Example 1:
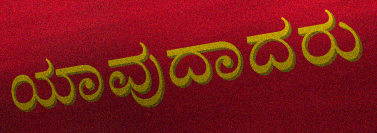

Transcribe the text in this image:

ಯಾವುದಾದರು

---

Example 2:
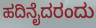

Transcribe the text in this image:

ಹದಿನೈದರಂದು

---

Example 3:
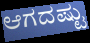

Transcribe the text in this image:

ಆಗದಷ್ಟು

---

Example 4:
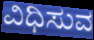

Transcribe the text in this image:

ವಿಧಿಸುವ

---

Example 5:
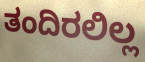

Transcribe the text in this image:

ತಂದಿರಲಿಲ್ಲ